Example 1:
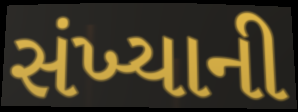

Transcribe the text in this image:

સંખ્યાની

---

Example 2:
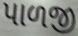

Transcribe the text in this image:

પાળજી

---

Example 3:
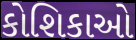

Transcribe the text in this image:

કોશિકાઓ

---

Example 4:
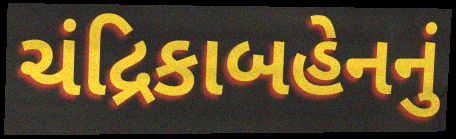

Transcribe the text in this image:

ચંદ્રિકાબહેનનું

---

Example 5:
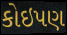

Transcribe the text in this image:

કોઇપણ